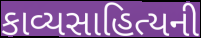
કાવ્યસાહિત્યની